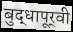
बुद्धापूर्वी